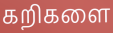
கறிகளை